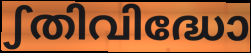
ഽതിവിദ്ധോ